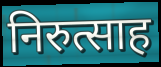
निरुत्साह